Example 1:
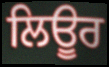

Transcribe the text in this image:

ਲਿਊਰ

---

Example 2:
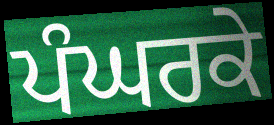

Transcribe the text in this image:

ਪੰਘਰਕੇ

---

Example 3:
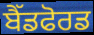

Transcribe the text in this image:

ਬੈੱਡਫੋਰਡ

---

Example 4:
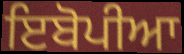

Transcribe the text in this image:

ਇਬੋਪੀਆ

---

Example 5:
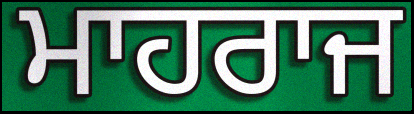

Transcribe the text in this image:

ਮਾਹਰਾਜ